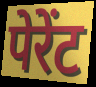
पेरेंट